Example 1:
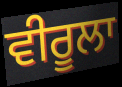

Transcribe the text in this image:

ਵੀਰੂਲਾ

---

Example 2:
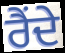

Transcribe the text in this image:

ਰੈਂਦੇ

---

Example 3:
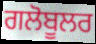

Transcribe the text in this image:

ਗਲੋਬੂਲਰ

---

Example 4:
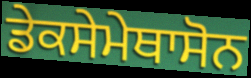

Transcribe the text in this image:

ਡੇਕਸੇਮੇਥਾਸੋਨ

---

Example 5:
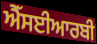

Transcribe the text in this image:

ਐੱਸਈਆਰਬੀ